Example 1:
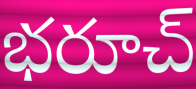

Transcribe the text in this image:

భరూచ్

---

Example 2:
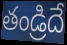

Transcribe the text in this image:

తండ్రిదే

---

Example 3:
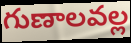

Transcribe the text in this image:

గుణాలవల్ల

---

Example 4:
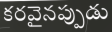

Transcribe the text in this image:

కరవైనప్పుడు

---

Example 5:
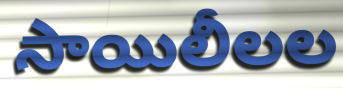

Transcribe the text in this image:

సాయిలీలల